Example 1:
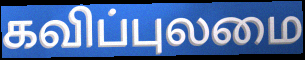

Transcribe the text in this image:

கவிப்புலமை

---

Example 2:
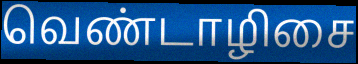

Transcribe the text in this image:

வெண்டாழிசை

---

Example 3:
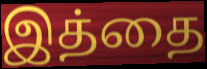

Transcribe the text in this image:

இத்தை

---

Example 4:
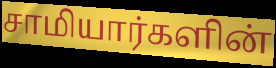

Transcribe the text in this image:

சாமியார்களின்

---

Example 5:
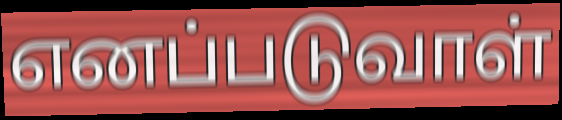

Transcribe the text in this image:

எனப்படுவாள்